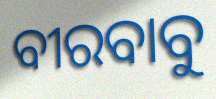
ବୀରବାବୁ